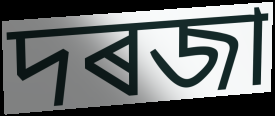
দৰজা